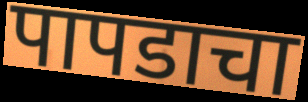
पापडाचा